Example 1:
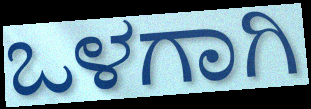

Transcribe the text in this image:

ಒಳಗಾಗಿ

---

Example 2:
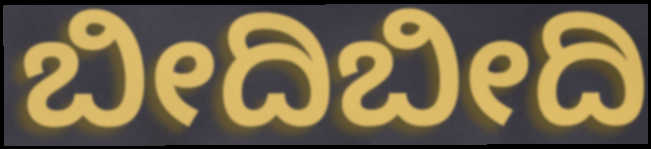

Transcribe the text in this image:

ಬೀದಿಬೀದಿ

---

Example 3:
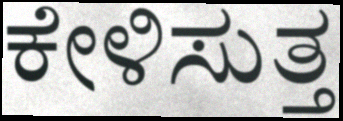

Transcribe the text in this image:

ಕೇಳಿಸುತ್ತ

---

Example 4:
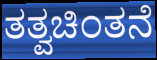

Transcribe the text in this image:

ತತ್ವಚಿಂತನೆ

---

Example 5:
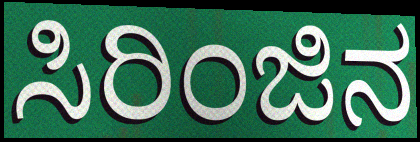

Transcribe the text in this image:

ಸಿರಿಂಜಿನ